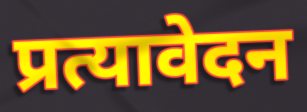
प्रत्यावेदन